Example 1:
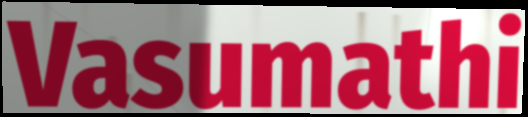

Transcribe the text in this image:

Vasumathi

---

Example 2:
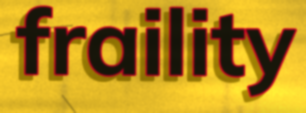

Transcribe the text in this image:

fraility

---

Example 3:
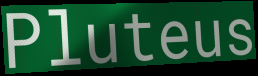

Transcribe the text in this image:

Pluteus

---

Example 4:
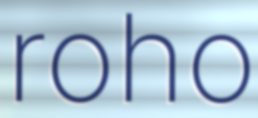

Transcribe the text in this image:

roho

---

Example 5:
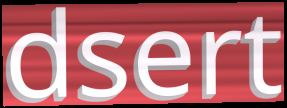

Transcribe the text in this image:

dsert